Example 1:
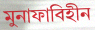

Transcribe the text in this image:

মুনাফাবিহীন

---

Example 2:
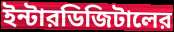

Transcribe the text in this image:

ইন্টারডিজিটালের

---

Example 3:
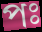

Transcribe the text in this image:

পঃ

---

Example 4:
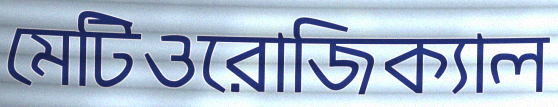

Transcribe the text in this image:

মেটিওরোজিক্যাল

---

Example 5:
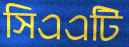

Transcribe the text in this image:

সিএএটি